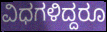
ವಿಧಗಳಿದ್ದರೂ